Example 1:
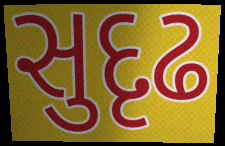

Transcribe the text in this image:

સુદૃઢ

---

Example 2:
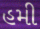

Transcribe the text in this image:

હમી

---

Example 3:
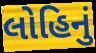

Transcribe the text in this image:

લોહિનું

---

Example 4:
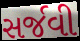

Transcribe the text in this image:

સર્જવી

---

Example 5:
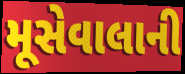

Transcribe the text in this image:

મૂસેવાલાની